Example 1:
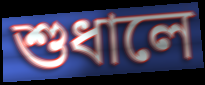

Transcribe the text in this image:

শুধালে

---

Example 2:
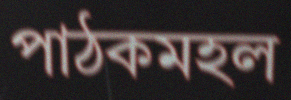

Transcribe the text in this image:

পাঠকমহল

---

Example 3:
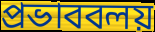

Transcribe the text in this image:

প্রভাববলয়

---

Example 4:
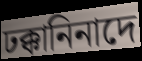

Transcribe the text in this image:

ঢক্কানিনাদে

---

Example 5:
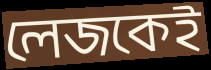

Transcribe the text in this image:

লেজকেই